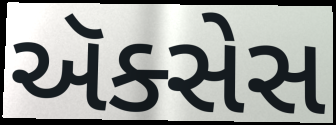
ઍક્સેસ